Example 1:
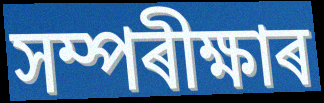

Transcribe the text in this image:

সম্পৰীক্ষাৰ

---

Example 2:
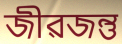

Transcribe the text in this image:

জীৱজন্তু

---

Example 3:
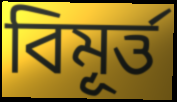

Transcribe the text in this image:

বিমূৰ্ত্ত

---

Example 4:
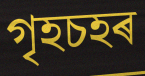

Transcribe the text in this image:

গৃহচহৰ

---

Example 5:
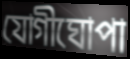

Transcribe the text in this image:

যোগীঘোপা